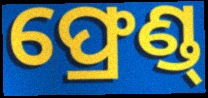
ଫ୍ରେଣ୍ଡ୍